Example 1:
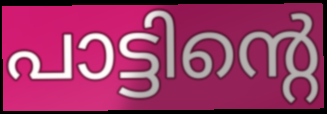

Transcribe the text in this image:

പാട്ടിന്റെ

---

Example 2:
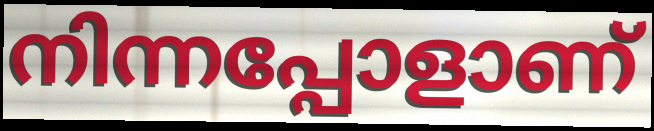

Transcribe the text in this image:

നിന്നപ്പോളാണ്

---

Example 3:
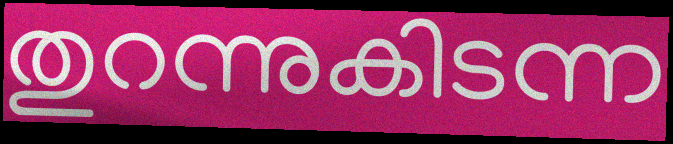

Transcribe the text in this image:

തുറന്നുകിടന്ന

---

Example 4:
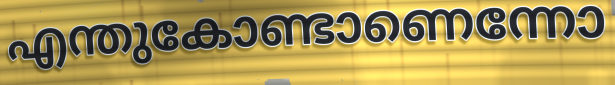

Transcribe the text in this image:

എന്തുകോണ്ടാണെന്നോ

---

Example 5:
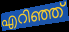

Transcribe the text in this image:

എറിഞ്ഞ്